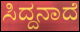
ಸಿದ್ದನಾದೆ